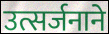
उत्सर्जनाने